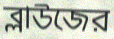
ব্লাউজের